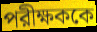
পরীক্ষককে